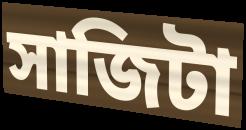
সাজিটা